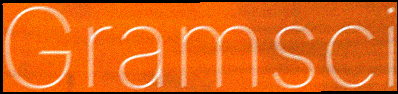
Gramsci